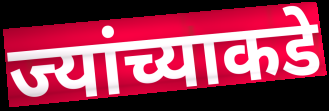
ज्यांच्याकडे